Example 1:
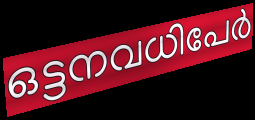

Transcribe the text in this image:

ഒട്ടനവധിപേർ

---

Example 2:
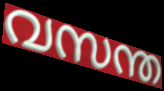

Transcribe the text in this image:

വസന്ത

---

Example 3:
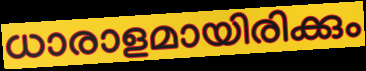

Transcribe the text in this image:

ധാരാളമായിരിക്കും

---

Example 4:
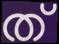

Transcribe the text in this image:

ത്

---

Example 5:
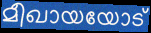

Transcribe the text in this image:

മീഖായയോട്